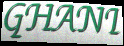
GHANI